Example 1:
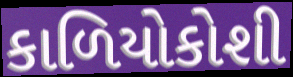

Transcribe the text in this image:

કાળિયોકોશી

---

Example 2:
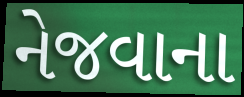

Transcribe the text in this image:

નેજવાના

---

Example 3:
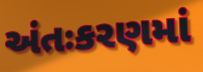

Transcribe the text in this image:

અંતઃકરણમાં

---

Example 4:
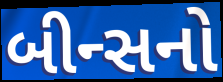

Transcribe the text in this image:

બીન્સનો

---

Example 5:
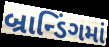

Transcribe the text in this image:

બ્રાન્ડિંગમાં